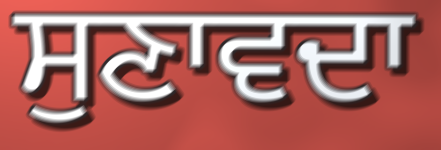
ਸੁਣਾਵਦਾ